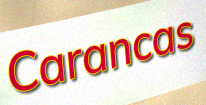
Carancas